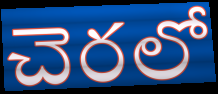
చెరలో